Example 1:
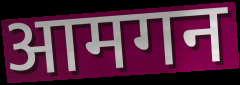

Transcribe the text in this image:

आमगन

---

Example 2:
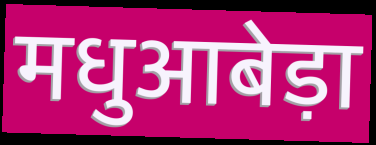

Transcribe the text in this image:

मधुआबेड़ा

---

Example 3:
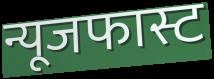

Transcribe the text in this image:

न्यूजफास्ट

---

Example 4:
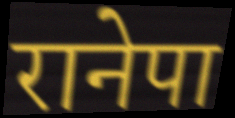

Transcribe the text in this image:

रानेपा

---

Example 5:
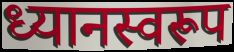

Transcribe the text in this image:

ध्यानस्वरूप